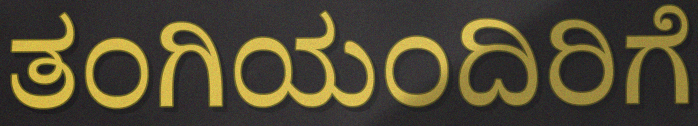
ತಂಗಿಯಂದಿರಿಗೆ